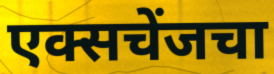
एक्सचेंजचा